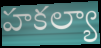
హకల్యా